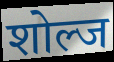
शोल्ज